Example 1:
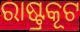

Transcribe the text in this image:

ରାଷ୍ଟ୍ରକୂଟ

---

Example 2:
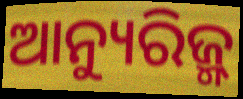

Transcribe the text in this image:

ଆନ୍ୟୁରିଜ୍ମ୍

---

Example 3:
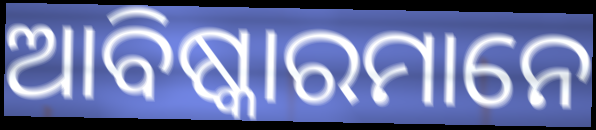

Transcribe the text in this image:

ଆବିଷ୍କାରମାନେ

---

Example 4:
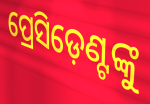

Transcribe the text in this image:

ପ୍ରେସିଡ଼େଣ୍ଟଙ୍କୁ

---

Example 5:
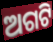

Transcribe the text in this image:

ଅଗଟି